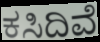
ಕಸಿದಿವೆ